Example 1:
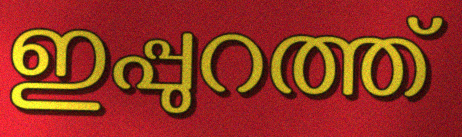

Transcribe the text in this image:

ഇപ്പുറത്ത്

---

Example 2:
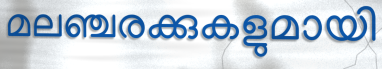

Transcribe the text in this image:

മലഞ്ചരക്കുകളുമായി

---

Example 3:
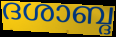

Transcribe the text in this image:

ദശാബ്ദ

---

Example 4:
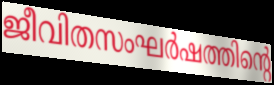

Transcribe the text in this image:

ജീവിതസംഘർഷത്തിന്റെ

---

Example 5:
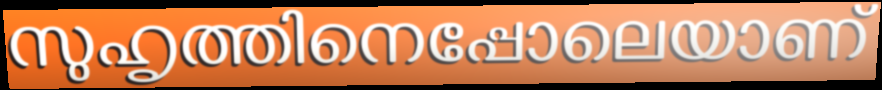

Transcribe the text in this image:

സുഹൃത്തിനെപ്പോലെയാണ്